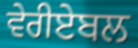
ਵੇਰੀਏਬਲ